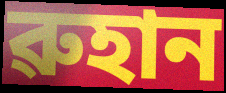
ৱুহান